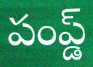
పంప్డ్